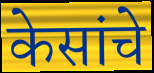
केसांचे